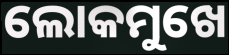
ଲୋକମୁଖେ